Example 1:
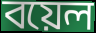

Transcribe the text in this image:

বয়েল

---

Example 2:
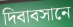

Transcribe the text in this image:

দিবাবসানে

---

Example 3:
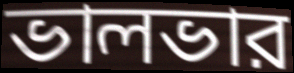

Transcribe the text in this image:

ভালভার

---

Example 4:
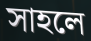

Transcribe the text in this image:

সাহলে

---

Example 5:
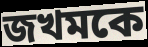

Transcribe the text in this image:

জখমকে